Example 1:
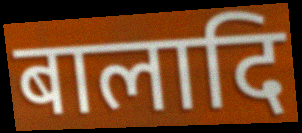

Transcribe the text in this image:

बालादि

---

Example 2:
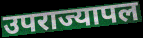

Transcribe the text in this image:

उपराज्यापल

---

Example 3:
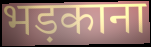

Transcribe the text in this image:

भड़काना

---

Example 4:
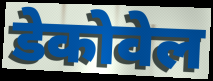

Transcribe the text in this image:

डेकोवेल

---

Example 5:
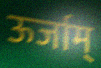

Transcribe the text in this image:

ऊर्जाम्